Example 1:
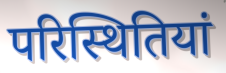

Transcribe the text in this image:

परिस्थितियां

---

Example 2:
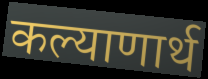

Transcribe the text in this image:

कल्याणार्थ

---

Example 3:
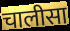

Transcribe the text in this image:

चालीसा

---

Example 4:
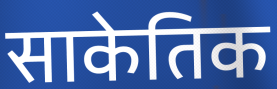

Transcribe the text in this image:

साकेतिक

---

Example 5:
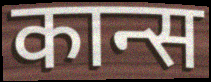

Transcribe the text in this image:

कान्स